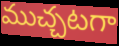
ముచ్చటగా